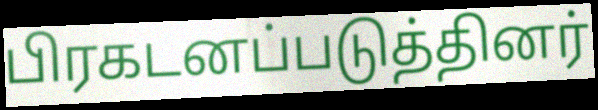
பிரகடனப்படுத்தினர்